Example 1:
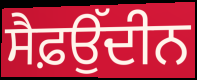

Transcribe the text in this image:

ਸੈਫ਼ਉੱਦੀਨ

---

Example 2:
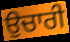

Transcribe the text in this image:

ਉਚਾਰੀ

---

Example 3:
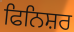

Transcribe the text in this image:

ਫਿਨਿਸ਼ਰ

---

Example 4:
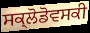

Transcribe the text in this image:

ਸਕ੍ਲੋਡੋਵਸਕੀ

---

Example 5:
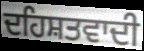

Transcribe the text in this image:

ਦਹਿਸ਼ਤਵਾਦੀ